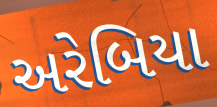
અરેબિયા